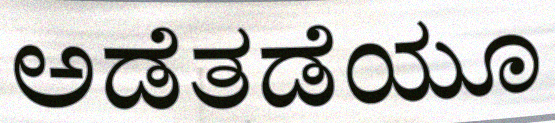
ಅಡೆತಡೆಯೂ